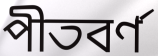
পীতবর্ণ